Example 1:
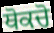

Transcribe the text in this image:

ਥੋਕਚੋ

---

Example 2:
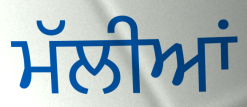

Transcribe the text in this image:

ਮੱਲੀਆਂ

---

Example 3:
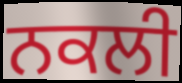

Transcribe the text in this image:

ਨਕਲੀ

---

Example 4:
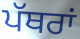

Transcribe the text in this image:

ਪੱਥਰਾਂ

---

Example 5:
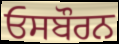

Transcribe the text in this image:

ਓਸਬੌਰਨ